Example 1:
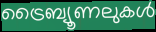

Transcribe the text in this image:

ട്രൈബ്യൂണലുകൾ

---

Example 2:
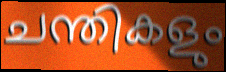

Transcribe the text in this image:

ചന്തികളും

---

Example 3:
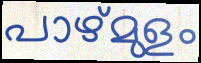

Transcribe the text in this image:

പാഴ്മുളം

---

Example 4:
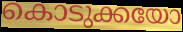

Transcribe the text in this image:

കൊടുക്കയോ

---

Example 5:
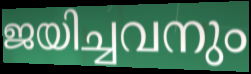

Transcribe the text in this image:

ജയിച്ചവനും